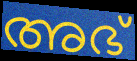
അഭ്